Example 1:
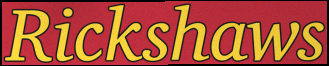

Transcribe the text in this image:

Rickshaws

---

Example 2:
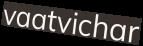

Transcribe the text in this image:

vaatvichar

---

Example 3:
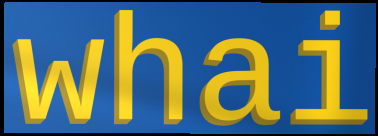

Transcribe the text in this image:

whai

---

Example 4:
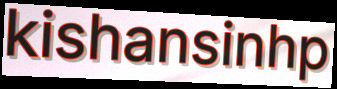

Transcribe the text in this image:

kishansinhp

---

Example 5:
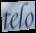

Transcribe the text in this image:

telo